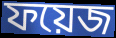
ফয়েজ